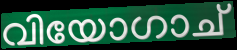
വിയോഗാച്